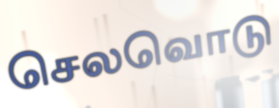
செலவொடு